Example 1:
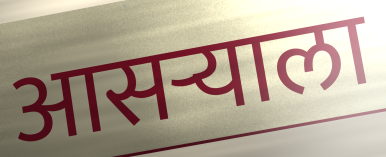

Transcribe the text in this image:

आसऱ्याला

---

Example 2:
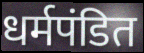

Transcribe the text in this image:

धर्मपंडित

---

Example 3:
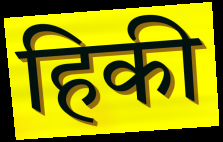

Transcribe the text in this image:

हिकी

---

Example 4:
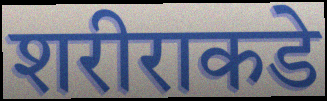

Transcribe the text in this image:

शरीराकडे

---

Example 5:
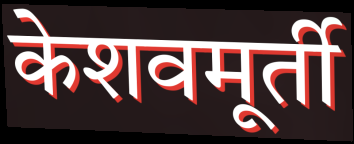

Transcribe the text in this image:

केशवमूर्ती